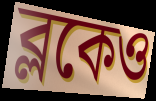
ব্লকেও